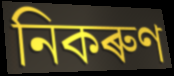
নিকৰুণ